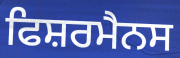
ਫਿਸ਼ਰਮੈਨਸ